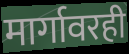
मार्गावरही